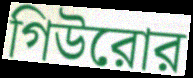
গিউরোর